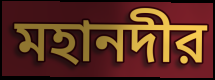
মহানদীর